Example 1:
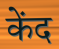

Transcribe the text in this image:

केंद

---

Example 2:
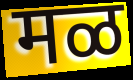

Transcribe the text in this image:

मळ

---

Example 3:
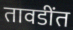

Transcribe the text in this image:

तावडींत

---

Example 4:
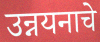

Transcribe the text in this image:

उन्नयनाचे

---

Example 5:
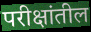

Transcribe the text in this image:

परीक्षांतील